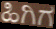
ಹಿಗಿಗ